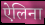
ऐलिना